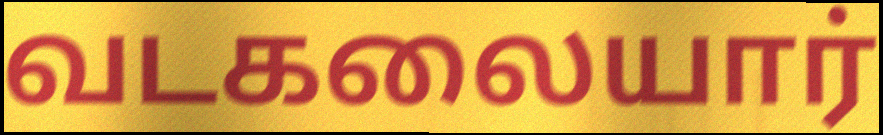
வடகலையார்